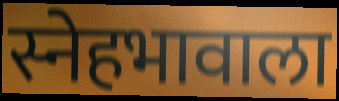
स्नेहभावाला